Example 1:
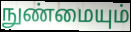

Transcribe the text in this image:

நுண்மையும்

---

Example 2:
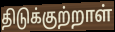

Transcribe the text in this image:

திடுக்குற்றாள்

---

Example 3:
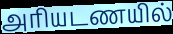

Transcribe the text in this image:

அரியடணயில்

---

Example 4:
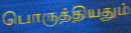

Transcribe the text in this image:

பொருத்தியதும்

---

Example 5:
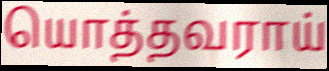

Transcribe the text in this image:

யொத்தவராய்